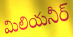
మిలియనీర్